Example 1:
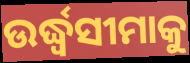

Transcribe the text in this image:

ଉର୍ଦ୍ଧ୍ୱସୀମାକୁ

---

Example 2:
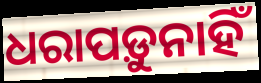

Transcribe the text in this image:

ଧରାପଡ଼ୁନାହିଁ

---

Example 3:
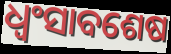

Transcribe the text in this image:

ଧ୍ଵଂସାବଶେଷ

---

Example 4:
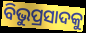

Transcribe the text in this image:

ବିଭୁପ୍ରସାଦକୁ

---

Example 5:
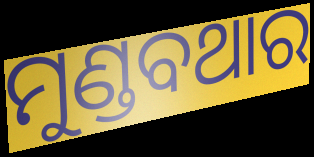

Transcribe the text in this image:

ମୁଣ୍ଡବଥାର